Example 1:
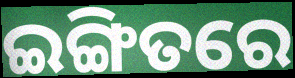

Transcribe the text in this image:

ଇଙ୍ଗିତରେ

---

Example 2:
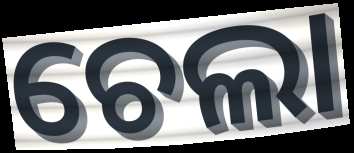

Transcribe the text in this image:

ଚେଲା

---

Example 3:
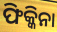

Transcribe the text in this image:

ଫିକ୍କିନା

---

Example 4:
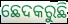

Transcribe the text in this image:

ଛେଦକରୁଛି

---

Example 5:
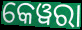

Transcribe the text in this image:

କେୱରା